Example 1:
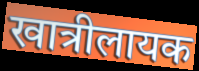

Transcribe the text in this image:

खात्रीलायक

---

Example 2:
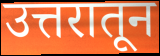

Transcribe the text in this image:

उत्तरातून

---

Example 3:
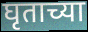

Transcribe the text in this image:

घृताच्या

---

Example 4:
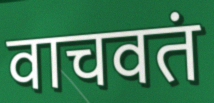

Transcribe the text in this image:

वाचवतं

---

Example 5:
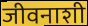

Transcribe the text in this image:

जीवनाशी